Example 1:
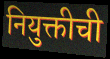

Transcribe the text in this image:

नियुक्तीची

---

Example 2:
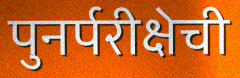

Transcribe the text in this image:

पुनर्परीक्षेची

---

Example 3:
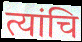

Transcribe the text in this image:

त्यांचि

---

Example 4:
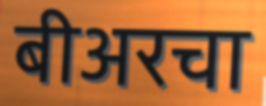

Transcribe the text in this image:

बीअरचा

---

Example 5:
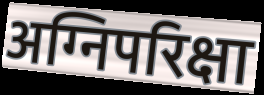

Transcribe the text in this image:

अग्निपरिक्षा